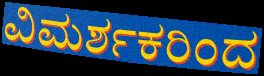
ವಿಮರ್ಶಕರಿಂದ